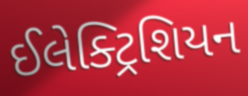
ઈલેક્ટ્રિશિયન